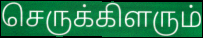
செருக்கிளரும்